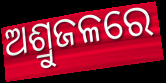
ଅଶ୍ରୁଜଳରେ